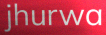
jhurwa